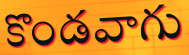
కొండవాగు